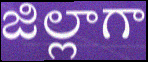
జిల్లాగా